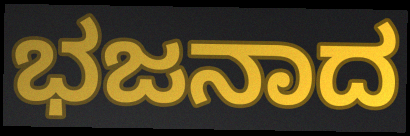
ಭಜನಾದ